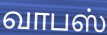
வாபஸ்